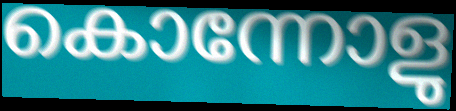
കൊന്നോളു